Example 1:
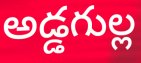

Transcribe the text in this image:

అడ్డగుల్ల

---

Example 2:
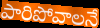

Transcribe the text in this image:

పారిపోవాలనే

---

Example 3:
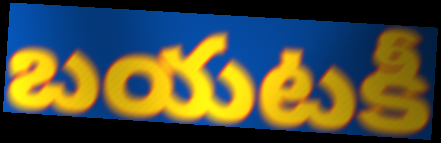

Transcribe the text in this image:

బయటకీ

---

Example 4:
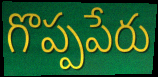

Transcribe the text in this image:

గొప్పపేరు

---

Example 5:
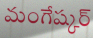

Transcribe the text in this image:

మంగేష్కర్